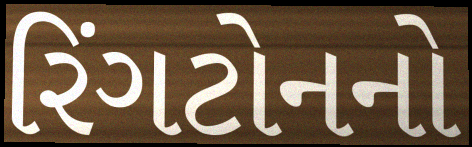
રિંગટોનનો